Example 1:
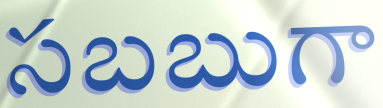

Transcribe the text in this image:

సబబుగా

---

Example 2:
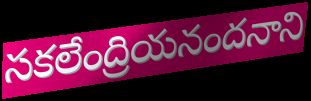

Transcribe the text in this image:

సకలేంద్రియనందనాని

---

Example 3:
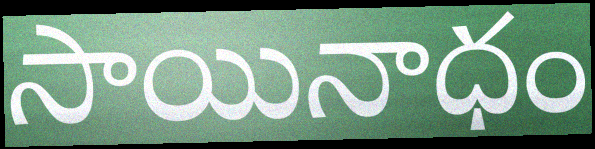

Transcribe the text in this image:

సాయినాధం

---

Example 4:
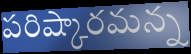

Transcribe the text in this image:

పరిష్కారమన్న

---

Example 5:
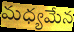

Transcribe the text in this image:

మధ్యమేన